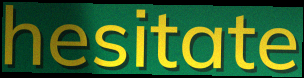
hesitate